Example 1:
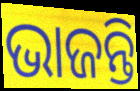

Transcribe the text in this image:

ଭାଜନ୍ତି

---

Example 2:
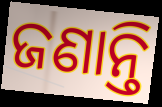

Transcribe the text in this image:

ଜଣାନ୍ତି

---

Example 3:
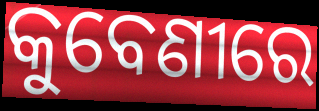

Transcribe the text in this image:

କୁବେଣୀରେ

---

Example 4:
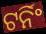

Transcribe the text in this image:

ଟର୍ନିଂ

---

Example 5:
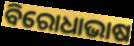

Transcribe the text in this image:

ବିରୋଧାଭାଷ